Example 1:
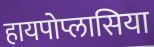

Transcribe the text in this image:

हायपोप्लासिया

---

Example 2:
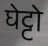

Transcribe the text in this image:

घेट्टो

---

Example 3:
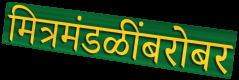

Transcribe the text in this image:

मित्रमंडळींबरोबर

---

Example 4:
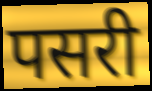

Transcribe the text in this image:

पसरी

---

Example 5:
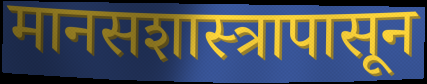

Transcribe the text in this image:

मानसशास्त्रापासून